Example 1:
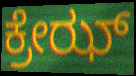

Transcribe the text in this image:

ಕ್ರೇಝ್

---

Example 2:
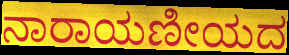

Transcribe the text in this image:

ನಾರಾಯಣೀಯದ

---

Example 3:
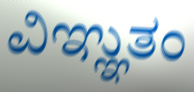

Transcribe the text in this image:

ವಿಞ್ಞುತಂ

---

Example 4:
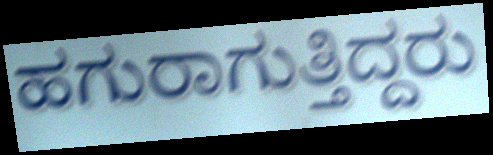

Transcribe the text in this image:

ಹಗುರಾಗುತ್ತಿದ್ದರು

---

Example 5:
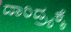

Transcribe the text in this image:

ದಾರಿದ್ರ್ಯಕ್ಕೆ